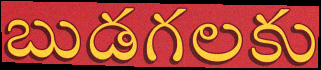
బుడగలకు